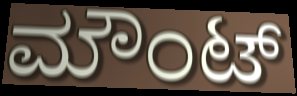
ಮೌಂಟ್